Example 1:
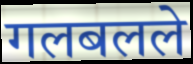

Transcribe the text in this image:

गलबलले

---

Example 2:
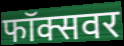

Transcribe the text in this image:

फॉक्सवर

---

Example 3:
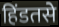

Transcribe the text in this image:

हिंडतसे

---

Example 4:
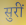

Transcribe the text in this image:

सुरीं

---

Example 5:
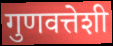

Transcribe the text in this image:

गुणवत्तेशी